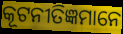
କୂଟନୀତିଜ୍ଞମାନେ